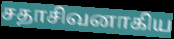
சதாசிவனாகிய